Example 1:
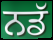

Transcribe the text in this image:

ਨਡੱ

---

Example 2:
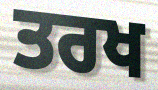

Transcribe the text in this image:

ਤਰਖ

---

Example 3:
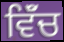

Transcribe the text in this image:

ਵਿੱੰਚ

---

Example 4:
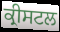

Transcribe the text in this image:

ਕ੍ਰੀਸਟਲ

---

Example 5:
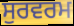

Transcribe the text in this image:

ਸੁਰਵਰਮ